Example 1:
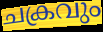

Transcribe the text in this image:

ചക്രവും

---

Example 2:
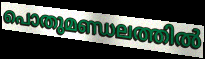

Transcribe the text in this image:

പൊതുമണ്ഡലത്തിൽ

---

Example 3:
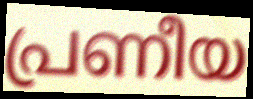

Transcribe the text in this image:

പ്രണീയ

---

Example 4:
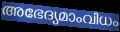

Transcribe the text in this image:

അഭേദ്യമാംവിധം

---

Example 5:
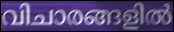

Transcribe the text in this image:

വിചാരങ്ങളിൽ